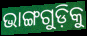
ଭାଙ୍ଗଗୁଡ଼ିକୁ